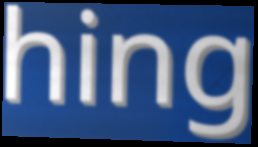
hing